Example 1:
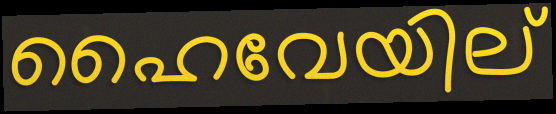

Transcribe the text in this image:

ഹൈവേയില്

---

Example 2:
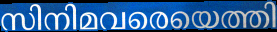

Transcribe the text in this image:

സിനിമവരെയെത്തി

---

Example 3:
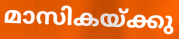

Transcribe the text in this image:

മാസികയ്ക്കു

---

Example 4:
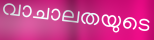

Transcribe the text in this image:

വാചാലതയുടെ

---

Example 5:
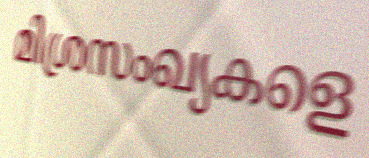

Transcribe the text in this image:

മിശ്രസംഖ്യകളെ